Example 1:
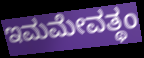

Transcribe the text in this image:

ಇಮಮೇವತ್ಥಂ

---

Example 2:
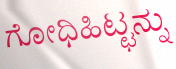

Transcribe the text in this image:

ಗೋಧಿಹಿಟ್ಟನ್ನು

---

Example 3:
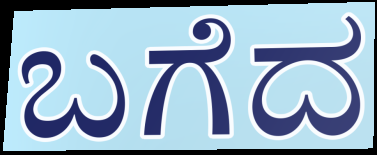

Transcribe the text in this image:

ಬಗೆದ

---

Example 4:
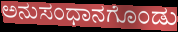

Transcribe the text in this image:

ಅನುಸಂಧಾನಗೊಂಡು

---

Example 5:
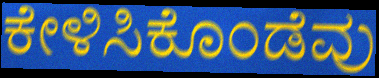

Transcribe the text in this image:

ಕೇಳಿಸಿಕೊಂಡೆವು